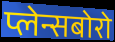
प्लेन्सबोरो